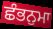
ਛੰਭਨੁਮਾ